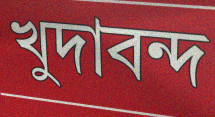
খুদাবন্দ